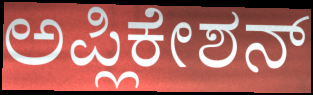
ಅಪ್ಲಿಕೇಶನ್